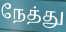
நேத்து